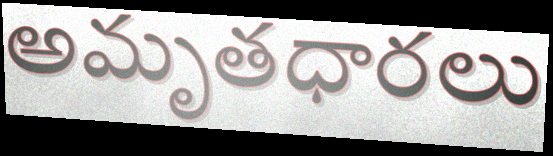
అమృతధారలు